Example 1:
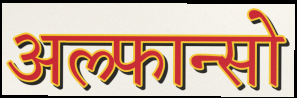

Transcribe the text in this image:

अल्फान्सो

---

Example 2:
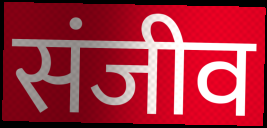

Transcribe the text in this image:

संजीव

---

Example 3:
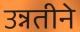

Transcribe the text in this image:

उन्नतीने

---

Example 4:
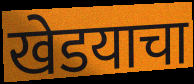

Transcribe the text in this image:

खेडयाचा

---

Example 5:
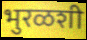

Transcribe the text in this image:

भुरळशी